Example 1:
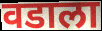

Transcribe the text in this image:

वडाला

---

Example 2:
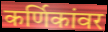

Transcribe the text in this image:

कर्णिकांवर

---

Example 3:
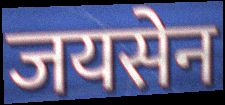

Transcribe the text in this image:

जयसेन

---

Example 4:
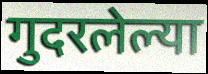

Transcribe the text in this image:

गुदरलेल्या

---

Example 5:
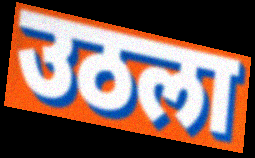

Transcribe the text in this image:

उठला